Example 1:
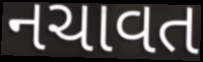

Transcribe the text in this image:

નચાવત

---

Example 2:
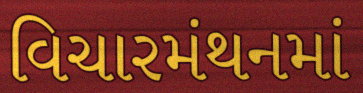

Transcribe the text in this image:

વિચારમંથનમાં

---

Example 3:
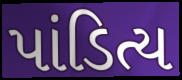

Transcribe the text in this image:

પાંડિત્ય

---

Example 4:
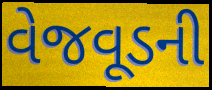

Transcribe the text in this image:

વેજવૂડની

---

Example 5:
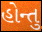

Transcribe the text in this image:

હોન્તુ